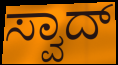
ಸ್ವಾದ್